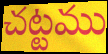
చట్టము